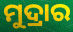
ମୁଦ୍ରାର